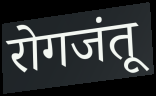
रोगजंतू